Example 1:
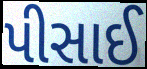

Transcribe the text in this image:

પીસાઈ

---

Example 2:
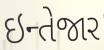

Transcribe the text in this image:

ઇન્તેજાર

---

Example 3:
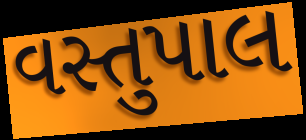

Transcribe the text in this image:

વસ્તુપાલ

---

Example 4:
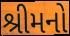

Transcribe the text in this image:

શ્રીમનો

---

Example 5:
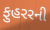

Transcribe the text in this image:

ફુહરરની